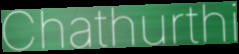
Chathurthi